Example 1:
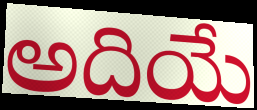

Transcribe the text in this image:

అదియే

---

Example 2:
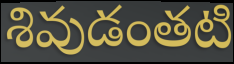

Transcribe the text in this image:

శివుడంతటి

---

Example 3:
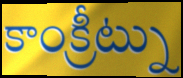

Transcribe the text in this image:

కాంక్రీట్ను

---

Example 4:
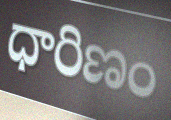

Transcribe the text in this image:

ధారిణం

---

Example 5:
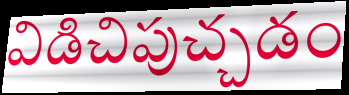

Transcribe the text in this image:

విడిచిపుచ్చడం